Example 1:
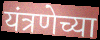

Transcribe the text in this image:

यंत्रणेच्या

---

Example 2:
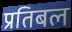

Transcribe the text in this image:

प्रतिबल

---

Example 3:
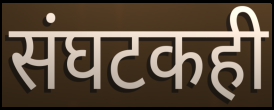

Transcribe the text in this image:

संघटकही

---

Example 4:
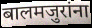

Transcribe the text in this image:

बालमजुरांना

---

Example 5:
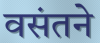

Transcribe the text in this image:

वसंतने